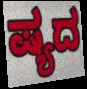
ಷ್ಯದ